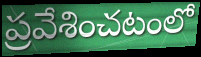
ప్రవేశించటంలో